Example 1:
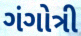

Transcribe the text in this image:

ગંગોત્રી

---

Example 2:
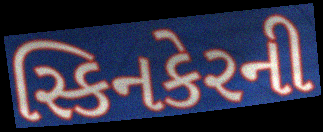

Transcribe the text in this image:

સ્કિનકેરની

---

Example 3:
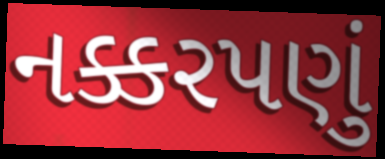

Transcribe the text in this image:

નક્કરપણું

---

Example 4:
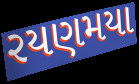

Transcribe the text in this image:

રયણમયા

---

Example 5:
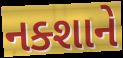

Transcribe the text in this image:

નક્શાને